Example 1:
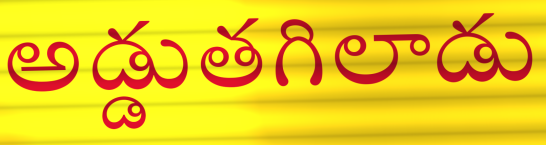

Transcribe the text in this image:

అడ్డుతగిలాడు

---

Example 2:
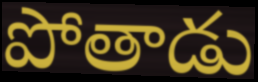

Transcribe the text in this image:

పోతాడు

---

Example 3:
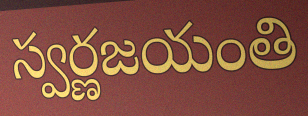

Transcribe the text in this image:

స్వర్ణజయంతి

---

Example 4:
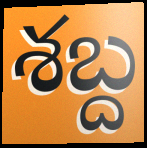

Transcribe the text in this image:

శబ్ద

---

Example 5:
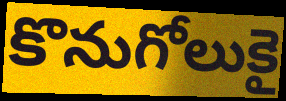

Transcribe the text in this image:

కొనుగోలుకై